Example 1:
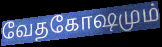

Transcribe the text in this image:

வேதகோஷமும்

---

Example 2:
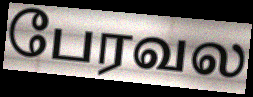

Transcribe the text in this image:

பேரவல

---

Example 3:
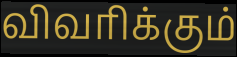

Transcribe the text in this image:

விவரிக்கும்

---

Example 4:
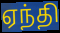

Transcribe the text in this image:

ஏந்தி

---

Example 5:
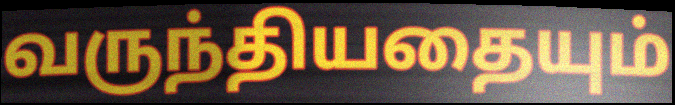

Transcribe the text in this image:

வருந்தியதையும்